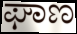
ಘಾಣ